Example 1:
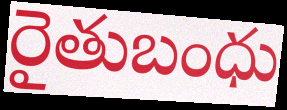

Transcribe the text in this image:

రైతుబంధు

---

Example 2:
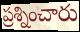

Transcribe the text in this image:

ప్రశ్నించారు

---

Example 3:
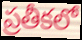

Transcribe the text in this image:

ప్రతీకలో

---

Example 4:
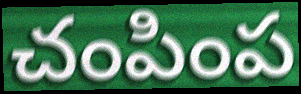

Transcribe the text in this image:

చంపింప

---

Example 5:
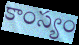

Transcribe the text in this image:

కాంస్యం